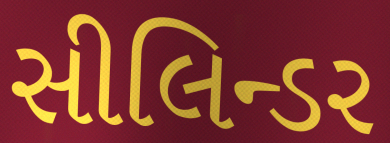
સીલિન્ડર